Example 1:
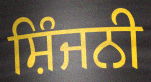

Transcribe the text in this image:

ਸ਼ਿੰਜਨੀ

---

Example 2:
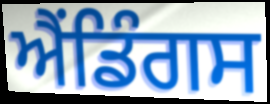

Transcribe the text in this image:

ਐਂਡਿੰਗਸ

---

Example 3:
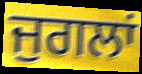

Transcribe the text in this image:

ਜੁਗਲਾਂ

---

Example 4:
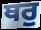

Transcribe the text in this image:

ਥਰੁ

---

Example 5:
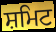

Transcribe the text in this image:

ਸ਼ਮਿਟ